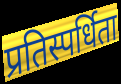
प्रतिस्पर्धिता